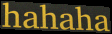
hahaha